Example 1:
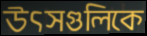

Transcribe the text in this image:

উৎসগুলিকে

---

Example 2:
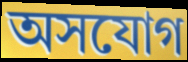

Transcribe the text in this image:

অসযোগ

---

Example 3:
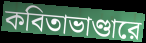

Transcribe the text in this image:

কবিতাভাণ্ডারে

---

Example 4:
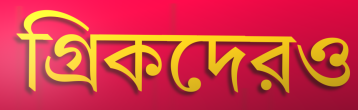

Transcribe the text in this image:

গ্রিকদেরও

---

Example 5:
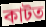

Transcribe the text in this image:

কাটত